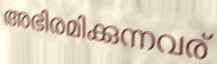
അഭിരമിക്കുന്നവര്